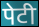
पेटी